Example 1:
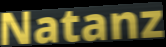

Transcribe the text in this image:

Natanz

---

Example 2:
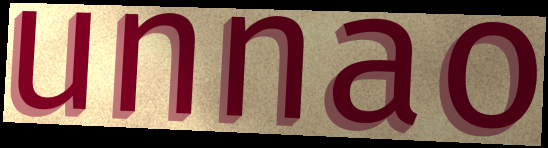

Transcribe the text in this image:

unnao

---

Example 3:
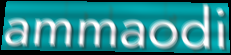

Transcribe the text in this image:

ammaodi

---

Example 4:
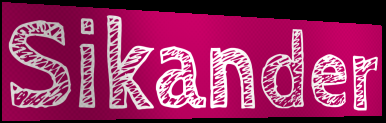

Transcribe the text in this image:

Sikander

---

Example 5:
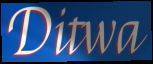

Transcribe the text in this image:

Ditwa